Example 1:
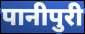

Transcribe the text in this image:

पानीपुरी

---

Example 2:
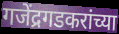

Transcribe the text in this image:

गजेंद्रगडकरांच्या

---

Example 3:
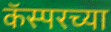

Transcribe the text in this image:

कॅस्परच्या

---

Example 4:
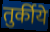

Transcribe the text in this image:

तुर्कीये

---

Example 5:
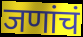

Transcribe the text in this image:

जणांचं